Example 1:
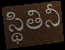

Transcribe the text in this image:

స్థితినీ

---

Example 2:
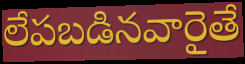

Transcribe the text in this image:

లేపబడినవారైతే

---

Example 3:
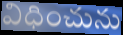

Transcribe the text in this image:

విధించును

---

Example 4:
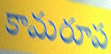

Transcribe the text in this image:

కామరూప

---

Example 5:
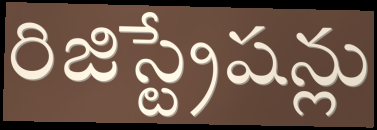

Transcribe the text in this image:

రిజిస్ట్రేషన్లు